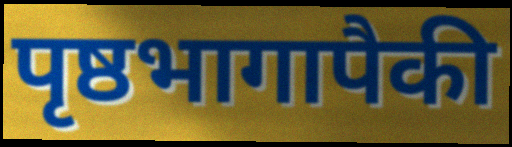
पृष्ठभागापैकी